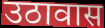
उठावास